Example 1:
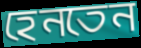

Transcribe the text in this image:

হেনতেন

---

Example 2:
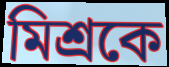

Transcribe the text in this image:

মিশ্রকে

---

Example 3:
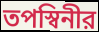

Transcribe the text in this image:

তপস্বিনীর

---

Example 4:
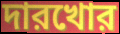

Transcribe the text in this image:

দারখোর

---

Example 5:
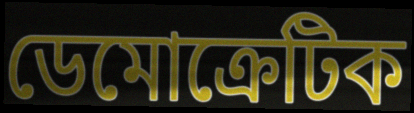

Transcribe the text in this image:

ডেমোক্রেটিক